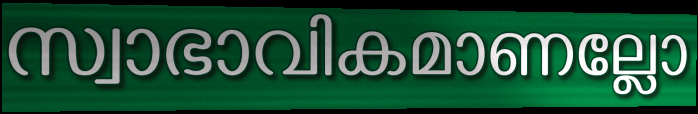
സ്വാഭാവികമാണല്ലോ